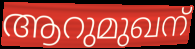
ആറുമുഖന്